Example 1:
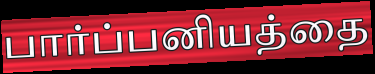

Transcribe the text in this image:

பார்ப்பனியத்தை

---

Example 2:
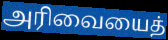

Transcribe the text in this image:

அரிவையைத்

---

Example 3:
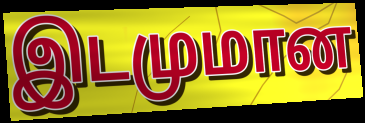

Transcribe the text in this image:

இடமுமான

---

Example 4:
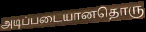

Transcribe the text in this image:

அடிப்படையானதொரு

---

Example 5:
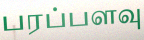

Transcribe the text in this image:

பரப்பளவு